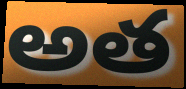
అత